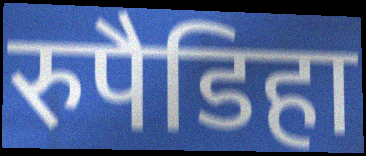
रुपैडिहा